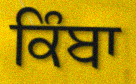
ਕਿੰਬਾ